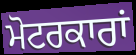
ਮੋਟਰਕਾਰਾਂ